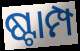
ଷ୍ଟାମ୍ପ